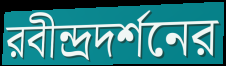
রবীন্দ্রদর্শনের